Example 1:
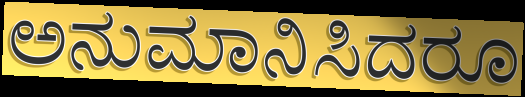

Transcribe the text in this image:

ಅನುಮಾನಿಸಿದರೂ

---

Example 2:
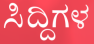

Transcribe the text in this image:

ಸಿದ್ದಿಗಳ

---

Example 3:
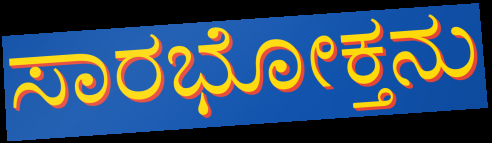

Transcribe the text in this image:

ಸಾರಭೋಕ್ತನು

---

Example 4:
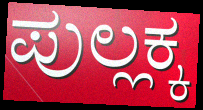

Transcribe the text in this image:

ಪುಲ್ಲಕ್ಕ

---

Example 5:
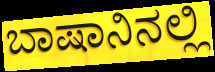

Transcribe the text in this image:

ಬಾಷಾನಿನಲ್ಲಿ